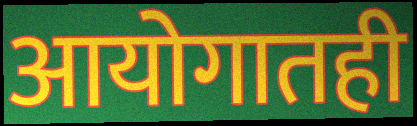
आयोगातही